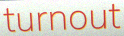
turnout